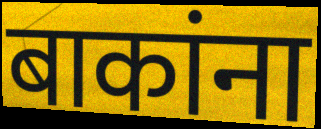
बाकांना